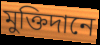
মুক্তিদানে